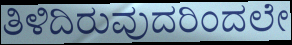
ತಿಳಿದಿರುವುದರಿಂದಲೇ